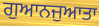
ਗੁਆਨਜੁਆਤਾ